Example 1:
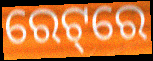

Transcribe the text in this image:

ରେଟ୍‌ରେ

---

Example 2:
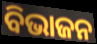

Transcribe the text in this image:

ବିଭାଜନ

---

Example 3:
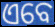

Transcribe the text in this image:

ଏବେ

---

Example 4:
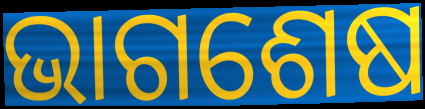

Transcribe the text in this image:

ଭାଗଶେଷ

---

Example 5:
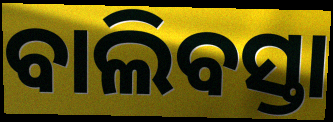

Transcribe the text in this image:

ବାଲିବସ୍ତା